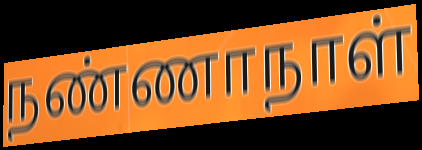
நண்ணாநாள்